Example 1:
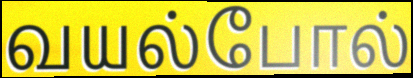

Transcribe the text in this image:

வயல்போல்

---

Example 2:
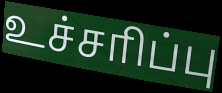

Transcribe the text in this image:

உச்சரிப்பு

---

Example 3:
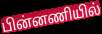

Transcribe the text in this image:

பின்னணியில்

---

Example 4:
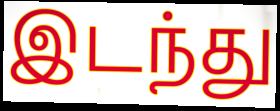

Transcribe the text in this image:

இடந்து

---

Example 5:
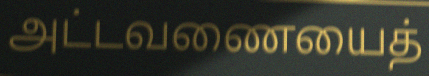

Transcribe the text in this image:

அட்டவணையைத்